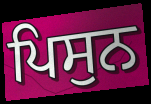
ਪਿਸੁਨ